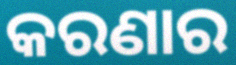
କରଣାର